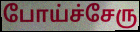
போய்ச்சேரு